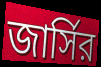
জার্সির